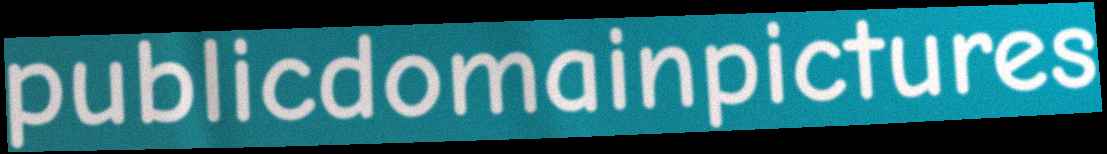
publicdomainpictures